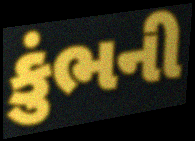
કુંભની